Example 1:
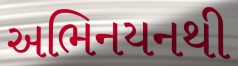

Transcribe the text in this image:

અભિનયનથી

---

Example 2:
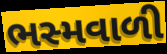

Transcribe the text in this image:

ભસ્મવાળી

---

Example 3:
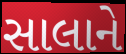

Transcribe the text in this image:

સાલાને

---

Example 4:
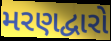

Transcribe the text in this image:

મરણદ્વારો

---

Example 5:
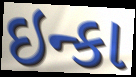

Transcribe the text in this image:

ઇન્કા